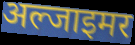
अल्जाइमर